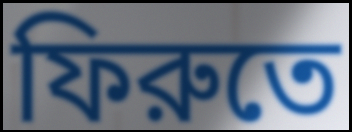
ফিরুতে